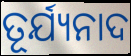
ତୂର୍ଯ୍ୟନାଦ